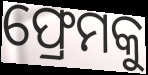
ଫ୍ରେମକୁ